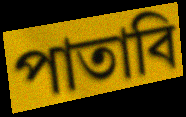
পাতাবি